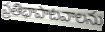
ప్రతిభాపాటవాలను